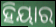
ହିୟାର